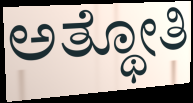
ಅತ್ಥೋತಿ